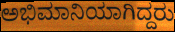
ಅಭಿಮಾನಿಯಾಗಿದ್ದರು